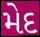
મેદ